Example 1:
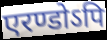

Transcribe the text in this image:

एरण्डोऽपि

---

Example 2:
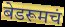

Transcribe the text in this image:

बेडरूमचं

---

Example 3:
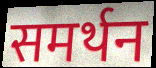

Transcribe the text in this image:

समर्थन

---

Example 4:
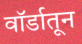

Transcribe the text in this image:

वॉर्डातून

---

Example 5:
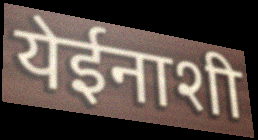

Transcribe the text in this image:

येईनाशी